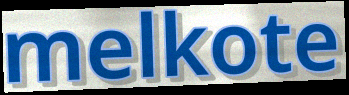
melkote